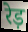
रेड़